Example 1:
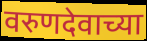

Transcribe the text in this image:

वरुणदेवाच्या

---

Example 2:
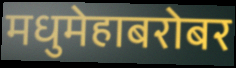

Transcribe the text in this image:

मधुमेहाबरोबर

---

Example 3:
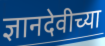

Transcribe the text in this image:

ज्ञानदेवीच्या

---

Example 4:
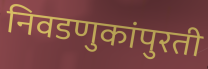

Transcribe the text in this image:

निवडणुकांपुरती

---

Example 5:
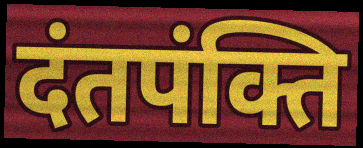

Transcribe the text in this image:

दंतपंक्ति